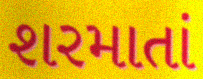
શરમાતાં